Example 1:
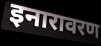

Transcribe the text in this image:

इनारावरण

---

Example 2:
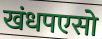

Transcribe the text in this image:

खंधपएसो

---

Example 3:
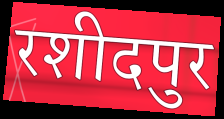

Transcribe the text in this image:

रशीदपुर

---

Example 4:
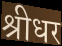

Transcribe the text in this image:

श्रीधर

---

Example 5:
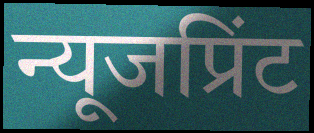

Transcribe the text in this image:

न्यूजप्रिंट